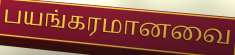
பயங்கரமானவை